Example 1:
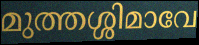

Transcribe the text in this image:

മുത്തശ്ശിമാവേ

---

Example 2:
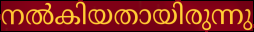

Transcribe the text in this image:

നൽകിയതായിരുന്നു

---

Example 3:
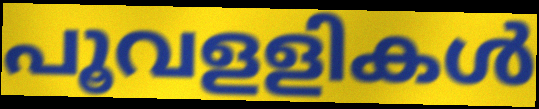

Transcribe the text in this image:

പൂവളളികൾ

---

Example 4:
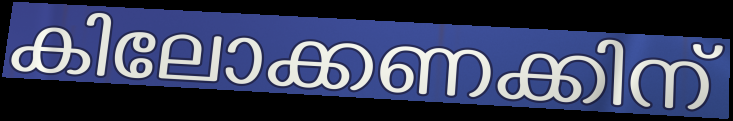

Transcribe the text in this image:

കിലോക്കണക്കിന്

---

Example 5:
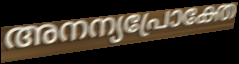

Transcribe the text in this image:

അനന്യപ്രോക്തേ